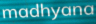
madhyana